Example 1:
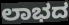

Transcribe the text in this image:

ಲಾಭದ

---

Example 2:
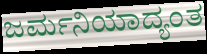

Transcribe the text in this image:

ಜರ್ಮನಿಯಾದ್ಯಂತ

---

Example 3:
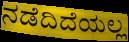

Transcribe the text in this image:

ನಡೆದಿದೆಯಲ್ಲ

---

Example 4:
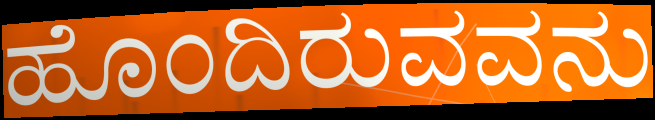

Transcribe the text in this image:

ಹೊಂದಿರುವವನು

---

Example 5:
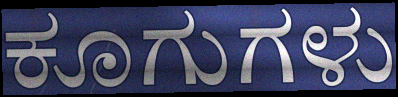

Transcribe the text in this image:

ಕೂಗುಗಳು